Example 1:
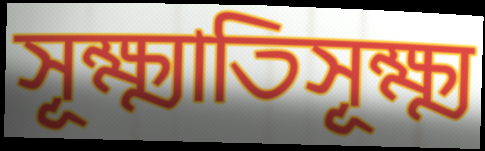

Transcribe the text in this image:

সূক্ষ্মাতিসূক্ষ্ম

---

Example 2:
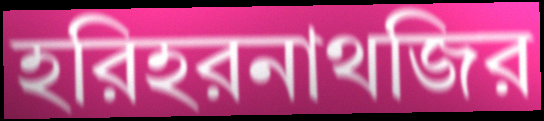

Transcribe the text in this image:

হরিহরনাথজির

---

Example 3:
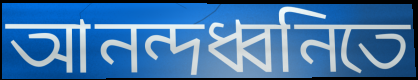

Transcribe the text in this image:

আনন্দধ্বনিতে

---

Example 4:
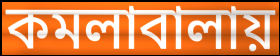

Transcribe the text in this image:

কমলাবালায়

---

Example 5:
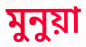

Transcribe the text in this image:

মুনুয়া